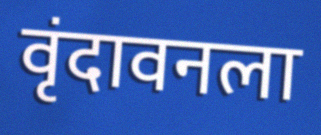
वृंदावनला